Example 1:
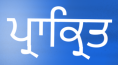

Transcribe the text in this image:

ਪ੍ਰਾਕ੍ਰਿਤ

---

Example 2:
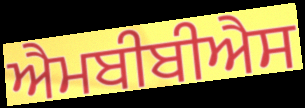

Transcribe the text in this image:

ਐਮਬੀਬੀਐਸ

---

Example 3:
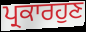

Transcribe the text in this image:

ਪ੍ਰਕਾਰਹੁਣ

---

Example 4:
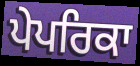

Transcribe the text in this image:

ਪੇਪਰਿਕਾ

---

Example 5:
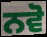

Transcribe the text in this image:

ਨਵੋ